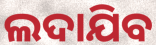
ଲଦାଯିବ